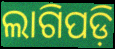
ଲାଗିପଡ଼ି